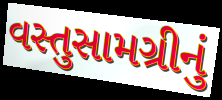
વસ્તુસામગ્રીનું